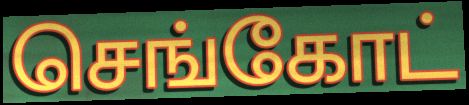
செங்கோட்